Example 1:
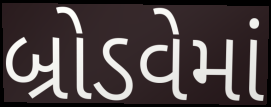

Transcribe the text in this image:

બ્રોડવેમાં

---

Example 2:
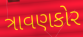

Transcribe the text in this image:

ત્રાવણકોર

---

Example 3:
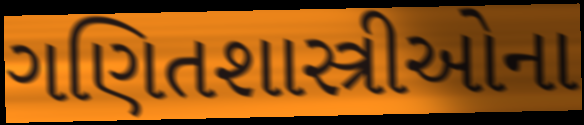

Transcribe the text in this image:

ગણિતશાસ્ત્રીઓના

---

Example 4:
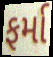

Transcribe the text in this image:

ફર્મા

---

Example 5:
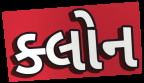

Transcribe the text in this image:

ક્લોન